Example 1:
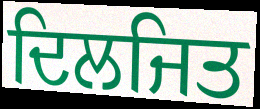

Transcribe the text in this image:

ਦਿਲਜਿਤ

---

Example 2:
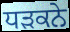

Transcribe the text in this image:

ਧਡ਼ਕਨੇ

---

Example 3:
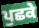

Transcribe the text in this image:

ਪੁਛਕੇ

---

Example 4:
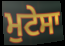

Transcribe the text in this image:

ਮੁਟੇਸਾ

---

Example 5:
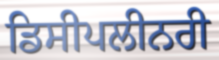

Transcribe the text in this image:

ਡਿਸੀਪਲੀਨਰੀ